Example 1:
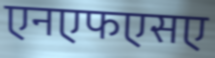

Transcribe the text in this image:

एनएफएसए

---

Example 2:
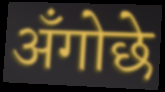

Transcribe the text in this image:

अँगोछे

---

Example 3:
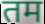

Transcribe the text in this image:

तम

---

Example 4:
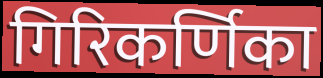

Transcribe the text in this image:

गिरिकर्णिका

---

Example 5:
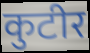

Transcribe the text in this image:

कुटीर